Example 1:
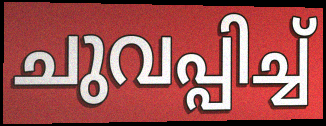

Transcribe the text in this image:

ചുവപ്പിച്ച്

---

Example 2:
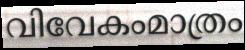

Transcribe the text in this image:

വിവേകംമാത്രം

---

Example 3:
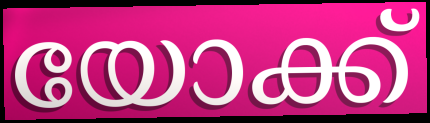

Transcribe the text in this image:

യോക്ക്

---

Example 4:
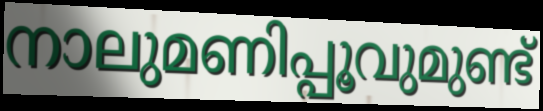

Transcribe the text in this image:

നാലുമണിപ്പൂവുമുണ്ട്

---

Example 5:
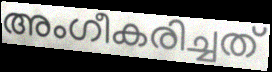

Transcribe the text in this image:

അംഗീകരിച്ചത്